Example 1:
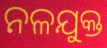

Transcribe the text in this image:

ନଳଯୁକ୍ତ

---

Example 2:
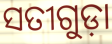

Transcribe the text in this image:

ସତୀଗୁଡ଼ା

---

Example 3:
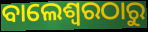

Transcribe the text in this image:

ବାଲେଶ୍ବରଠାରୁ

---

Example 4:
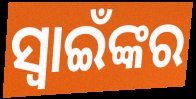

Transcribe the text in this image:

ସ୍ଵାଇଁଙ୍କର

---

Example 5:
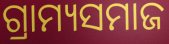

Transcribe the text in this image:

ଗ୍ରାମ୍ୟସମାଜ